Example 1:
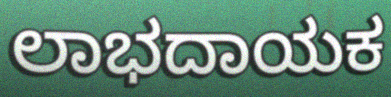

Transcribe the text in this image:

ಲಾಭದಾಯಕ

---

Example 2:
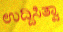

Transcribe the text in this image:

ಉದ್ದಿಸಿತ್ವಾ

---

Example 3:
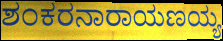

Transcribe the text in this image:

ಶಂಕರನಾರಾಯಣಯ್ಯ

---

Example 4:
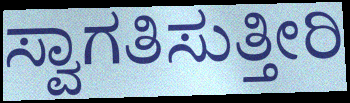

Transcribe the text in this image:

ಸ್ವಾಗತಿಸುತ್ತೀರಿ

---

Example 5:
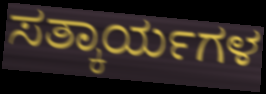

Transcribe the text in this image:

ಸತ್ಕಾರ್ಯಗಳ